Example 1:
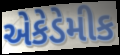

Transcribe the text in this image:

એકેડેમીક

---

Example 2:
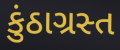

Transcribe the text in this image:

કુંઠાગ્રસ્ત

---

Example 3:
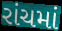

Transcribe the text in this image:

રાંચમાં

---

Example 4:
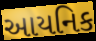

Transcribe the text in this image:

આયનિક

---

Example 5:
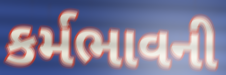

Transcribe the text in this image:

કર્મભાવની